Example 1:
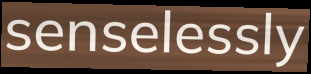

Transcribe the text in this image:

senselessly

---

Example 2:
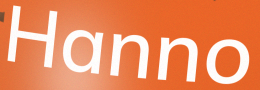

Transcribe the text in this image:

Hanno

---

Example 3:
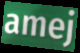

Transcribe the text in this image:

amej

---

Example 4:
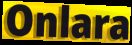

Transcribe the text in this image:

Onlara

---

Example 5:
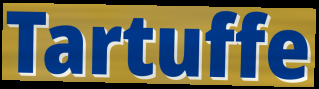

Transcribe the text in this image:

Tartuffe